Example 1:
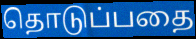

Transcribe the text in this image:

தொடுப்பதை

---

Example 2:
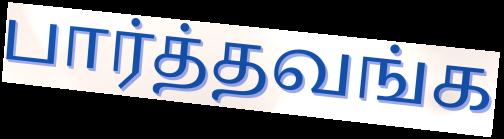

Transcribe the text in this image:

பார்த்தவங்க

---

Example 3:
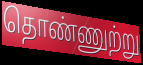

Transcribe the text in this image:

தொண்ணுற்று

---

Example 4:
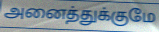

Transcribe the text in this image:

அனைத்துக்குமே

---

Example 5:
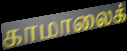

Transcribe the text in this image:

காமாலைக்